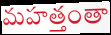
మహత్తంతా